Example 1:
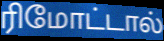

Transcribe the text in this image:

ரிமோட்டால்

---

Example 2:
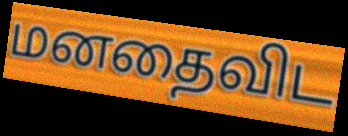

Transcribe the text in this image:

மனதைவிட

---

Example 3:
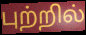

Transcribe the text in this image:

புற்றில்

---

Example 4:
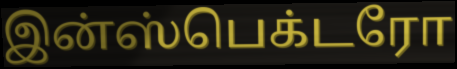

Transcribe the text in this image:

இன்ஸ்பெக்டரோ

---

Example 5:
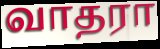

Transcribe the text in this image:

வாதரா